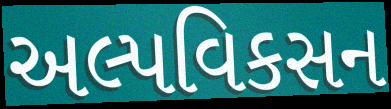
અલ્પવિકસન